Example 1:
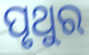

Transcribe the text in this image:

ପୃଥୁର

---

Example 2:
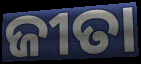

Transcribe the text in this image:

ଜୀତା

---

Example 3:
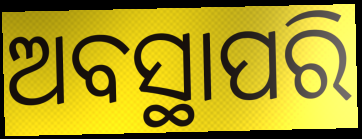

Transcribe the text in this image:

ଅବସ୍ଥାପରି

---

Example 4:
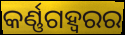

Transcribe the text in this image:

କର୍ଣ୍ଣଗହ୍ୱରର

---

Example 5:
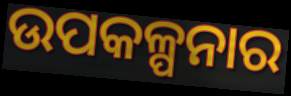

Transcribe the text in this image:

ଉପକଳ୍ପନାର